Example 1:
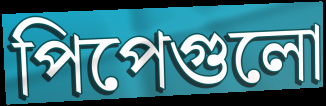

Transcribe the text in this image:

পিপেগুলো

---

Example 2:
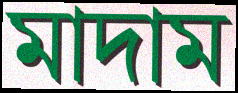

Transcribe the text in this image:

মাদাম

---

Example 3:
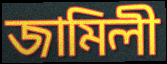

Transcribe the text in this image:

জামিলী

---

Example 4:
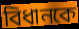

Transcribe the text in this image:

বিধানকে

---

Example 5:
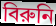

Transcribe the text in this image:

বিরুনি